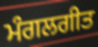
ਮੰਗਲਗੀਤ